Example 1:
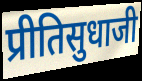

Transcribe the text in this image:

प्रीतिसुधाजी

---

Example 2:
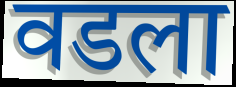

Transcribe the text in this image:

वडला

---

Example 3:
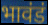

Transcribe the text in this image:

भावंडं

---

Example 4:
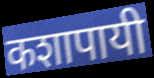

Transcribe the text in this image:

कशापायी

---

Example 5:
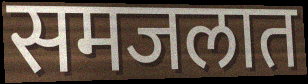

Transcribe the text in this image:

समजलात